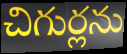
చిగుర్లను